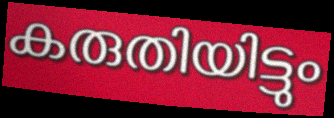
കരുതിയിട്ടും